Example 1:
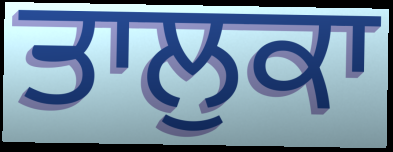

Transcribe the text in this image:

ਤਾਲੁਕਾ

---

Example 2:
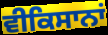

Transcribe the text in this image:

ਵੀਕਿਸਾਨਾਂ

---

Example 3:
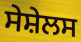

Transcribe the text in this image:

ਸੇਸ਼ੇਲਸ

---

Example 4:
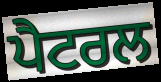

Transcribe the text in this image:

ਪੈਟਰਲ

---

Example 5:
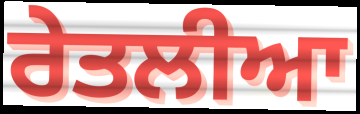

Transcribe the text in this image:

ਰੇਤਲੀਆ